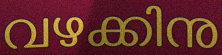
വഴക്കിനു